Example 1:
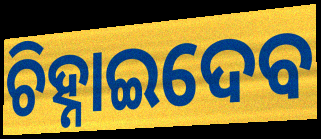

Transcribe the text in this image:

ଚିହ୍ନାଇଦେବ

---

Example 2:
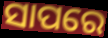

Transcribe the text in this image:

ସାପରେ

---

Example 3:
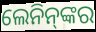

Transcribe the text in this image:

ଲେନିନ୍‌ଙ୍କର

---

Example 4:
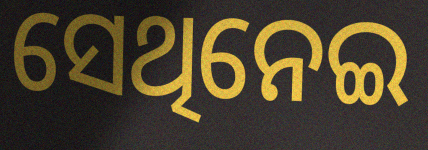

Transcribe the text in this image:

ସେଥିନେଇ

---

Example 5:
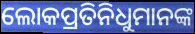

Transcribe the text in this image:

ଲୋକପ୍ରତିନିଧୁମାନଙ୍କ